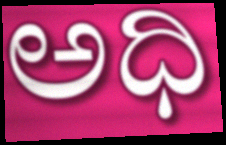
ಅಧಿ